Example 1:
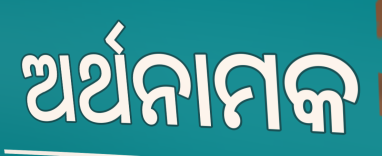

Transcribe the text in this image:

ଅର୍ଥନାମକ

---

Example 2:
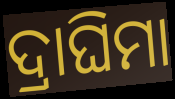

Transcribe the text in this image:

ଦ୍ରାଘିମା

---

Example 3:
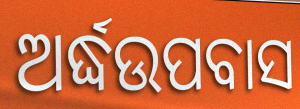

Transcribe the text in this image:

ଅର୍ଦ୍ଧଉପବାସ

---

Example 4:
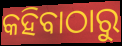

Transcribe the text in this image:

କହିବାଠାରୁ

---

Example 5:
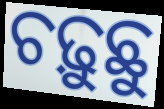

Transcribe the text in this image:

ଚଢ଼ୁଛୁ